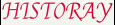
HISTORAY